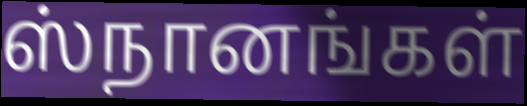
ஸ்நானங்கள்